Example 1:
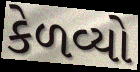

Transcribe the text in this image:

કેળવ્યો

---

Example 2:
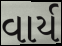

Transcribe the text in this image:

વાર્ય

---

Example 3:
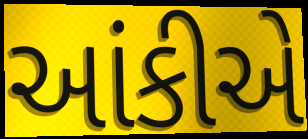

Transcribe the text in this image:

આંકીએ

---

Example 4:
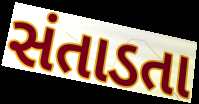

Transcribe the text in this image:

સંતાડતા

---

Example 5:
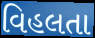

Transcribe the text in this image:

વિહલતા